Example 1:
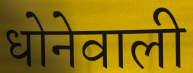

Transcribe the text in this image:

धोनेवाली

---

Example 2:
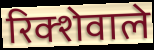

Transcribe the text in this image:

रिक्‍शेवाले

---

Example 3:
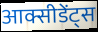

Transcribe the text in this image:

आक्सीडेंट्स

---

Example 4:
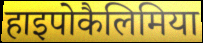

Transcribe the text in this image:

हाइपोकैलिमिया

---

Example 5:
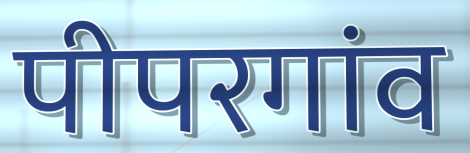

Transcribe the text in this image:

पीपरगांव